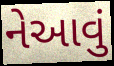
નેઆવું